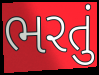
ભરતું